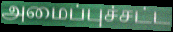
அமைப்புச்சட்ட